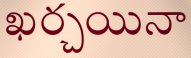
ఖర్చయినా